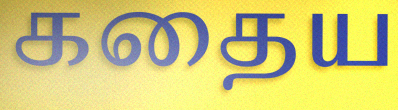
கதைய